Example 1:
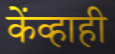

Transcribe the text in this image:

केंव्हाही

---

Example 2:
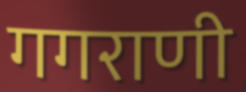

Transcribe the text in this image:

गगराणी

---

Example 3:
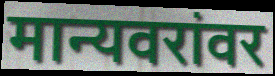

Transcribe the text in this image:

मान्यवरांवर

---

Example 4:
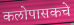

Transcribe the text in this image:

कलोपासकचे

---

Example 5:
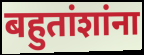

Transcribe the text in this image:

बहुतांशांना